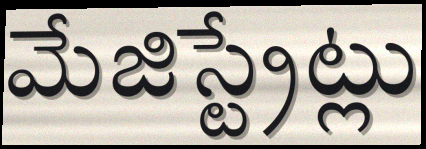
మేజిస్ట్రేట్లు